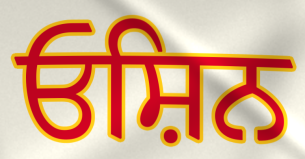
ਓਸ਼ਿਨ